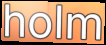
holm